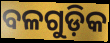
ବଳଗୁଡ଼ିକ